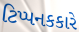
ટિપ્પનકકારે